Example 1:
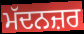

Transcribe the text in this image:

ਮੱਦਨਜ਼ਰ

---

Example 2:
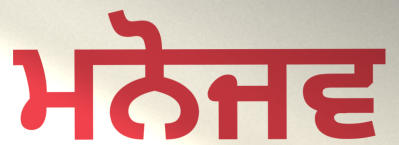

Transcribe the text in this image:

ਮਨੋਜਵ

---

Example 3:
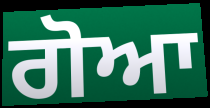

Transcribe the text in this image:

ਗੋਆ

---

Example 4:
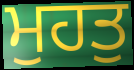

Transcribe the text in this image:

ਮੁਹਤੁ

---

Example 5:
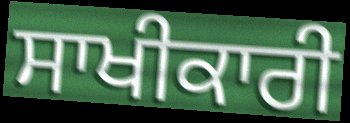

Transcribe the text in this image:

ਸਾਖੀਕਾਰੀ